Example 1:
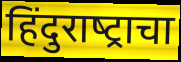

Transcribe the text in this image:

हिंदुराष्ट्राचा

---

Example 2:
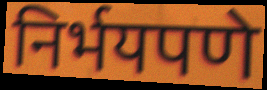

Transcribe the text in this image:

निर्भयपणे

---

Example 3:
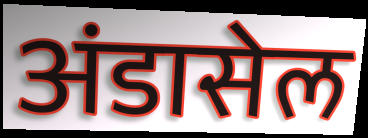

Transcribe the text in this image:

अंडासेल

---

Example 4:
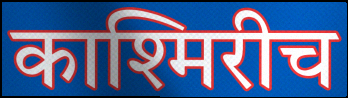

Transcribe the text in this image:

काश्मिरीच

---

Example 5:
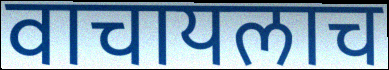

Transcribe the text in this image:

वाचायलाच